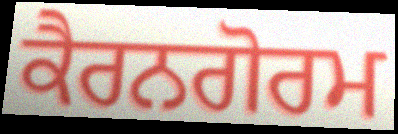
ਕੈਰਨਗੋਰਮ